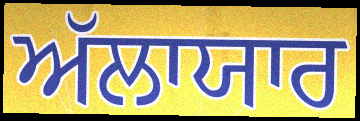
ਅੱਲਾਯਾਰ